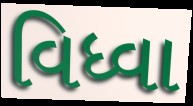
વિધ્વા